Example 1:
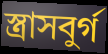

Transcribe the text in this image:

স্ত্রাসবুর্গ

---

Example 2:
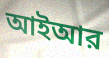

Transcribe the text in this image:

আইআর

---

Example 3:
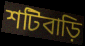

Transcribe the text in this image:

শটিবাড়ি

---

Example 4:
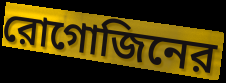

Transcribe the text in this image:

রোগোজিনের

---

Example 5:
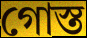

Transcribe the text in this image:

গোস্ত